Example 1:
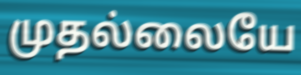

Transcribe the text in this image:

முதல்லையே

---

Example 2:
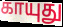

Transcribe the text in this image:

காயுது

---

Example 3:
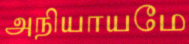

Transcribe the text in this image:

அநியாயமே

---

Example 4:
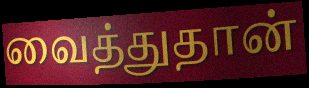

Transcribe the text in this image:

வைத்துதான்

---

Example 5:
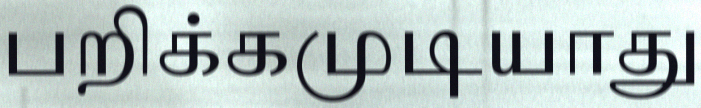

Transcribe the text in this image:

பறிக்கமுடியாது